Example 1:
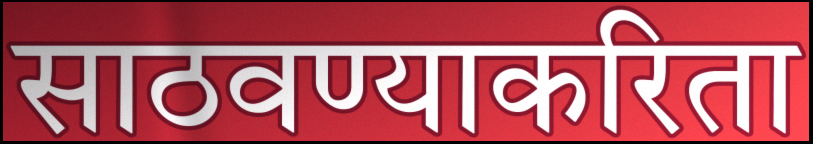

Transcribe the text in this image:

साठवण्याकरिता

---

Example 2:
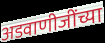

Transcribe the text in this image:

अडवाणीजींच्या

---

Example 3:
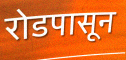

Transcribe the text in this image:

रोडपासून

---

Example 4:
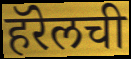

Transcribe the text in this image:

हॅरेलची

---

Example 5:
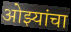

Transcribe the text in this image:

ओझ्यांचा